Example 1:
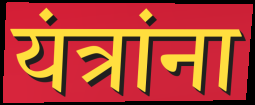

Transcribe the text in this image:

यंत्रांना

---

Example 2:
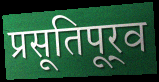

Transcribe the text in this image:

प्रसूतिपूर्व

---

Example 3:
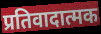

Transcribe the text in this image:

प्रतिवादात्मक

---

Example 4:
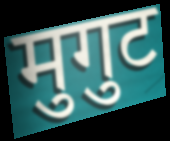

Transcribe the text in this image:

मुगुट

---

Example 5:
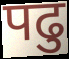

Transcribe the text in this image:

पढु